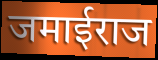
जमाईराज